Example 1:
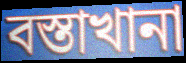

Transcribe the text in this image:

বস্তাখানা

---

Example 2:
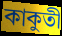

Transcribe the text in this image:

কাকুতী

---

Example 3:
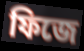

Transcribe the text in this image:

ফিজে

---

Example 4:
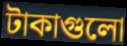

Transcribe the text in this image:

টাকাগুলো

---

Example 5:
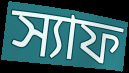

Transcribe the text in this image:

স্যাফ